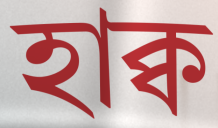
হাক্ব